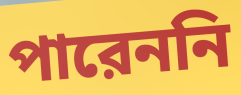
পারেননি